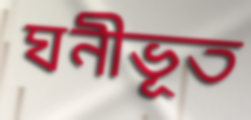
ঘনীভূত